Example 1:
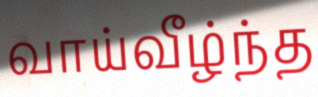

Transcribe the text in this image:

வாய்வீழ்ந்த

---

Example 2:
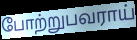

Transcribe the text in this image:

போற்றுபவராய்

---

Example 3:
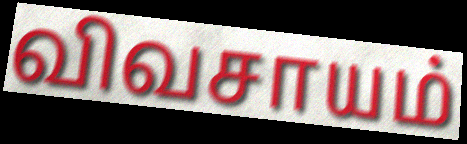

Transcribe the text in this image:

விவசாயம்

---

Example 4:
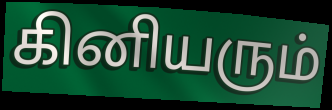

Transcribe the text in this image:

கினியரும்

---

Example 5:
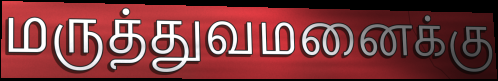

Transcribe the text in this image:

மருத்துவமனைக்கு